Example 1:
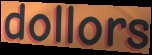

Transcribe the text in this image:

dollors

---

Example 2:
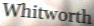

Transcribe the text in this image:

Whitworth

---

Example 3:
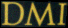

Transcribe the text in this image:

DMI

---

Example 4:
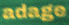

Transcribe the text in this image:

adage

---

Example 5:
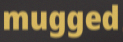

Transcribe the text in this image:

mugged